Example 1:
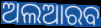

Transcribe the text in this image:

ଅଲଆରବ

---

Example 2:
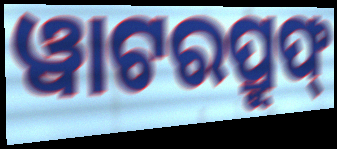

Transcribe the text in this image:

ୱାଟରପ୍ରୁଫ୍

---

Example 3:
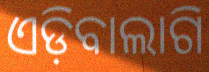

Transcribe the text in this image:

ଏଡ଼ିବାଲାଗି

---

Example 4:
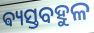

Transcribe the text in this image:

ଵ୍ୟସ୍ତବହୁଳ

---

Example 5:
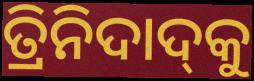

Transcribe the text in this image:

ତ୍ରିନିଦାଦ୍‍କୁ